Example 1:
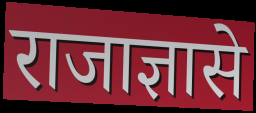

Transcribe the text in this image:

राजाज्ञासे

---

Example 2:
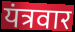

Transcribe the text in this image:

यंत्रवार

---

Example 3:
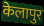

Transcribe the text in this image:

केलापुर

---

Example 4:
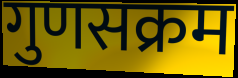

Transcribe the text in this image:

गुणसक्रम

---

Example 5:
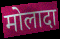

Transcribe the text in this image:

मोलादा